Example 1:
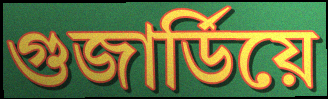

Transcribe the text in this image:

গুজাৰ্ডিয়ে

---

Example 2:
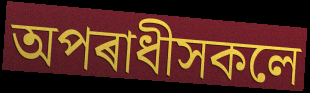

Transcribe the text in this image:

অপৰাধীসকলে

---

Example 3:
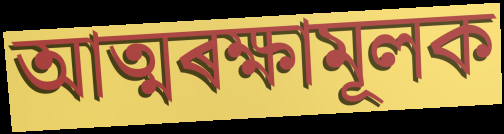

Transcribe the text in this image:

আত্মৰক্ষামূলক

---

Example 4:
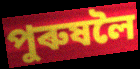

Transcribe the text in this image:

পুৰুষলৈ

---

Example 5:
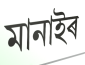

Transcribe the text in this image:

মানাইৰ